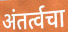
अंतर्त्वचा